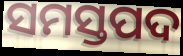
ସମସ୍ତପଦ